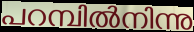
പറമ്പിൽനിന്നു